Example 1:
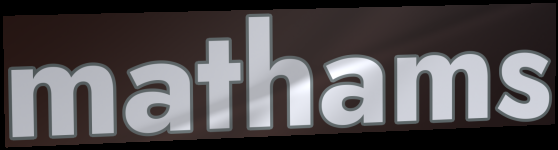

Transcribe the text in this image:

mathams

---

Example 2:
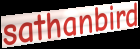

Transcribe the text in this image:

sathanbird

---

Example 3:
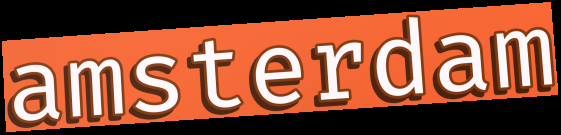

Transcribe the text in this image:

amsterdam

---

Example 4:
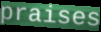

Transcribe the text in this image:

praises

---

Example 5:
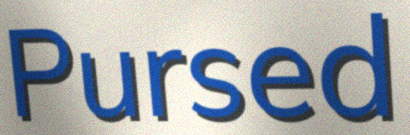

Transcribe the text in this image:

Pursed